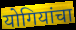
योगियांचा